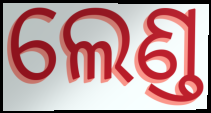
ଲେଣ୍ଡ